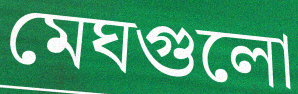
মেঘগুলো